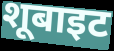
शूबाइट